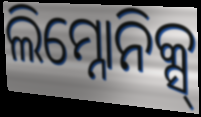
ଲିମ୍ନୋନିକ୍ସ୍